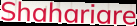
Shahariare